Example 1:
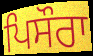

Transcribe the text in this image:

ਪਿਸੌਰਾ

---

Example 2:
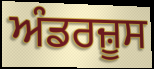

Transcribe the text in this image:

ਅੰਡਰਜ਼ੂਸ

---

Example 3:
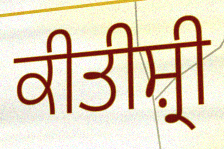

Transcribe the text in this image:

ਕੀਤੀਸ਼੍ਰੀ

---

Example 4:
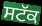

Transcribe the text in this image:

ਸਟੱਕ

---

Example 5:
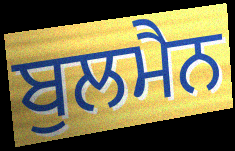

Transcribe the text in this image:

ਬੁਲਮੈਨ